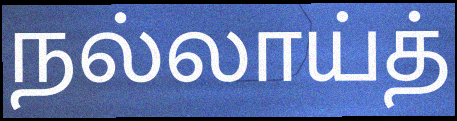
நல்லாய்த்